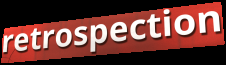
retrospection